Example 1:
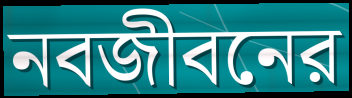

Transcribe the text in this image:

নবজীবনের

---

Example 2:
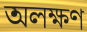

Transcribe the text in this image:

অলক্ষণ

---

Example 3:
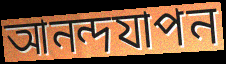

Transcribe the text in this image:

আনন্দযাপন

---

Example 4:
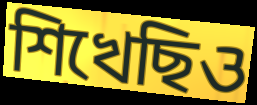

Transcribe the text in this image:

শিখেছিও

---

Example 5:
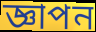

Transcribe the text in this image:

জ্ঞাপন